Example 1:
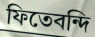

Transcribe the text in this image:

ফিতেবন্দি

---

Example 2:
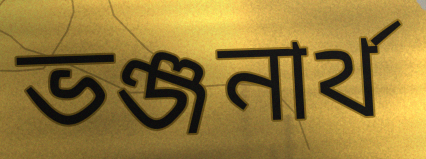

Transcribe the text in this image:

ভঞ্জনার্থ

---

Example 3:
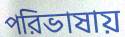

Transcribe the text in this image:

পরিভাষায়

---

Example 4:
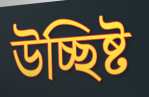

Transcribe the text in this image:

উচ্ছিষ্ট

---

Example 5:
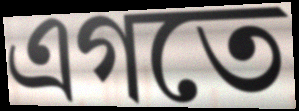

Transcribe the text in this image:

এগতে